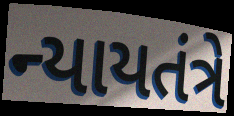
ન્યાયતંત્રે